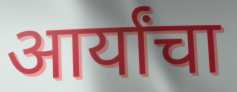
आर्यांचा